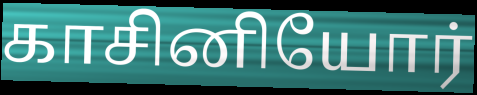
காசினியோர்